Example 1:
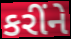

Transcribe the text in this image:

કરીંને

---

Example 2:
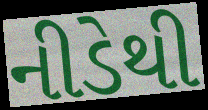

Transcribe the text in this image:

નીડેથી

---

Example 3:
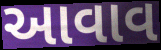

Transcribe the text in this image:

આવાવ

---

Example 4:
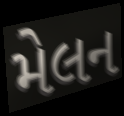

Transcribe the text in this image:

મેલન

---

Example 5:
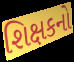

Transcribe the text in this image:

શિક્ષકનો